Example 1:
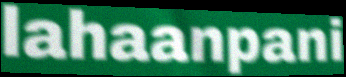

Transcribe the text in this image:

lahaanpani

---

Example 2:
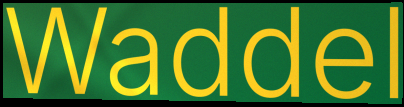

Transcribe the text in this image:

Waddel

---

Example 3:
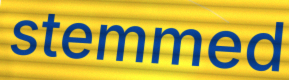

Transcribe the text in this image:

stemmed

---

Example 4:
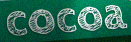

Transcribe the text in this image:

cocoa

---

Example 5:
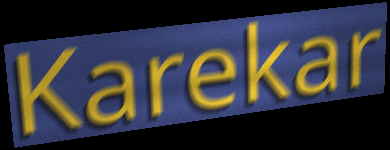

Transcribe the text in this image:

Karekar